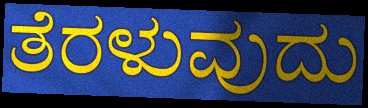
ತೆರಳುವುದು